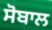
ਸੋਬਾਲ